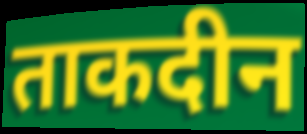
ताकदीन